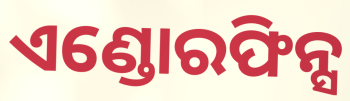
ଏଣ୍ଡୋରଫିନ୍ସ